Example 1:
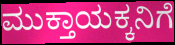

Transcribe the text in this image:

ಮುಕ್ತಾಯಕ್ಕನಿಗೆ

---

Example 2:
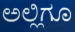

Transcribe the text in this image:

ಅಲ್ಲಿಗೂ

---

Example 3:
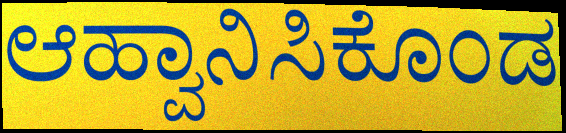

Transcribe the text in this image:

ಆಹ್ವಾನಿಸಿಕೊಂಡ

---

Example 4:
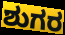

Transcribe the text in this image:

ಶುಗರ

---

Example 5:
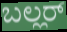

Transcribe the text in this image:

ಬಲ್ಲರ್